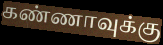
கண்ணாவுக்கு